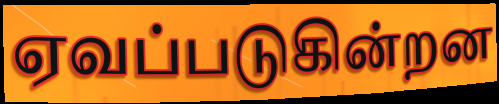
ஏவப்படுகின்றன